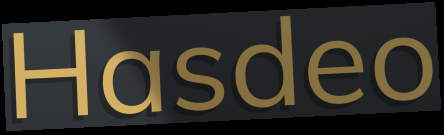
Hasdeo